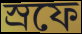
স্রফে